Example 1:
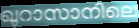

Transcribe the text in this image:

ഖുറാസാനിലെ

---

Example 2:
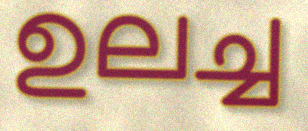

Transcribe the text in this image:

ഉലച്ച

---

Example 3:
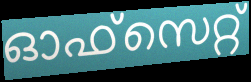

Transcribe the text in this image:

ഓഫ്സെറ്റ്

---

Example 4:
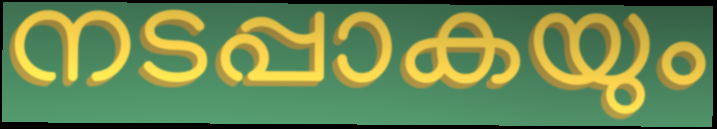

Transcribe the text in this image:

നടപ്പാകയും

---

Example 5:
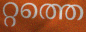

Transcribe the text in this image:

റ്റത്തെ